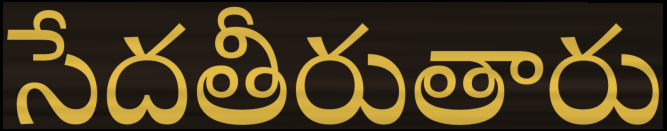
సేదతీరుతారు